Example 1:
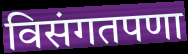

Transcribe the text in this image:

विसंगतपणा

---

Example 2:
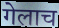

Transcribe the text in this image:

गेलाच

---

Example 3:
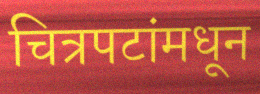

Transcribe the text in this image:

चित्रपटांमधून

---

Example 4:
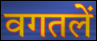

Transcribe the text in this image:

वगतलें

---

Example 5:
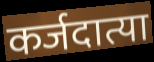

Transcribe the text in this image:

कर्जदात्या